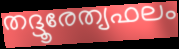
തദ്ദൂരേത്യഫലം